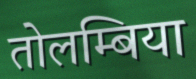
तोलम्बिया